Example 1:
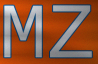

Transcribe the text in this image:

MZ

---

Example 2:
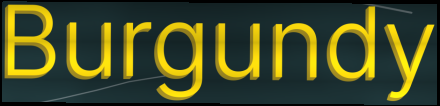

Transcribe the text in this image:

Burgundy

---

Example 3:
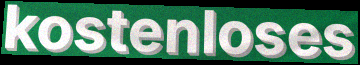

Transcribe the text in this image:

kostenloses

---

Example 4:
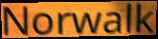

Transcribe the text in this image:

Norwalk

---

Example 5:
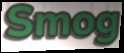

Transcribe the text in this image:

Smog